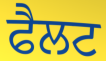
ਫੈਲਟ